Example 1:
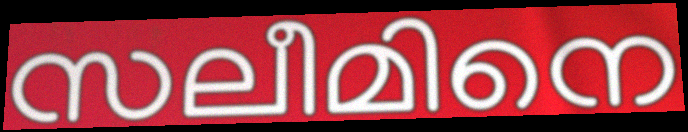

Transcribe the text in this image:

സലീമിനെ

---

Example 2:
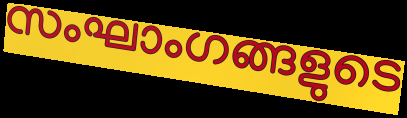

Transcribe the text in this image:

സംഘാംഗങ്ങളുടെ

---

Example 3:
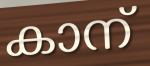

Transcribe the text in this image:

കാന്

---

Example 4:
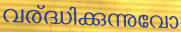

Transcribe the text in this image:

വര്ദ്ധിക്കുന്നുവോ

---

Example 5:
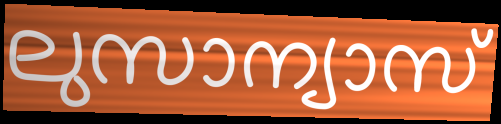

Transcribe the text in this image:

ലുസാന്യാസ്